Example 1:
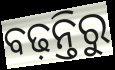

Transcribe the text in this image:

ବଢ଼ନ୍ତିରୁ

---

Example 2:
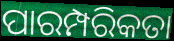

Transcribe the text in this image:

ପାରମ୍ପରିକତା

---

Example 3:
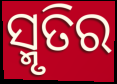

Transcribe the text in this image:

ସ୍ମୃତିର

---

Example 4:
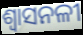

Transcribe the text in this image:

ଶ୍ଵାସନଳୀ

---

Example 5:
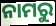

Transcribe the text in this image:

ନାମରୁ